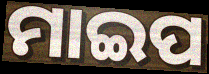
ମାଇପ